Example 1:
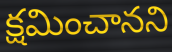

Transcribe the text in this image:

క్షమించానని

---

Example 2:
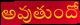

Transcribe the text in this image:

అవుతుందో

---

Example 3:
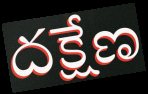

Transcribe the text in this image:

దక్షేణ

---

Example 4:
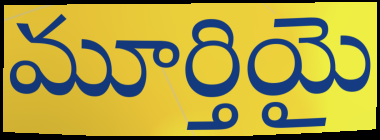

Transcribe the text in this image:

మూర్తియై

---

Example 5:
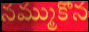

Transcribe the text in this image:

నమ్ముకొన